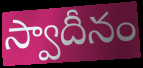
స్వాదీనం